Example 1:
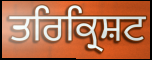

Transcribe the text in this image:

ਤਰਿਕ੍ਰਿਸ਼ਟ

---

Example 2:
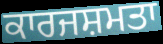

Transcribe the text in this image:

ਕਾਰਜਸ਼ਮਤਾ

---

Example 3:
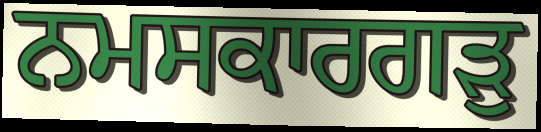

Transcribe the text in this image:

ਨਮਸਕਾਰਗੜੁ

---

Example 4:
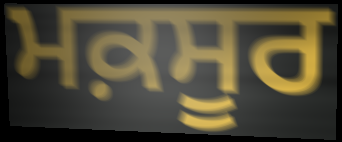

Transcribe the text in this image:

ਮਕ਼ਸੂਰ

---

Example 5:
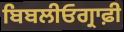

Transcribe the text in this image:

ਬਿਬਲੀਓਗ੍ਰਾਫ਼ੀ